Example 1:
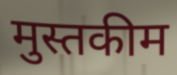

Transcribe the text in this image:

मुस्तकीम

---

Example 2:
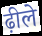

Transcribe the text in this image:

ढ़ीले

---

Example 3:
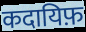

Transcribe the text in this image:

कदायिफ़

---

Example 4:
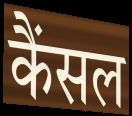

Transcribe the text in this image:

कैंसल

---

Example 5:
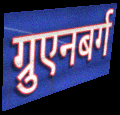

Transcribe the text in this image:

ग्रुएनबर्ग